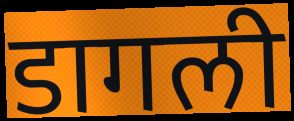
डागली